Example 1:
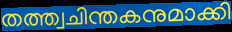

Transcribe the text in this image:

തത്ത്വചിന്തകനുമാക്കി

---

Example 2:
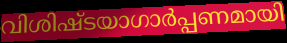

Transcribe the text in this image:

വിശിഷ്ടയാഗാർപ്പണമായി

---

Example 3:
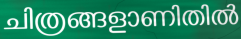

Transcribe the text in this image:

ചിത്രങ്ങളാണിതിൽ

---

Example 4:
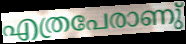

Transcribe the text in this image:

എത്രപേരാണു്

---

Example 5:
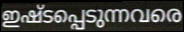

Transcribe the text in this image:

ഇഷ്ടപ്പെടുന്നവരെ